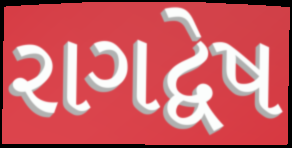
રાગદ્વેષ